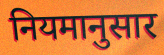
नियमानुसार